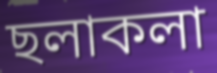
ছলাকলা